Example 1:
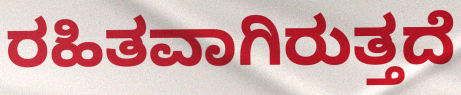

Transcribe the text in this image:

ರಹಿತವಾಗಿರುತ್ತದೆ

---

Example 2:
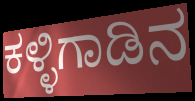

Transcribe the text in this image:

ಕಳ್ಳಿಗಾಡಿನ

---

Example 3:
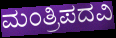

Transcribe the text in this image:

ಮಂತ್ರಿಪದವಿ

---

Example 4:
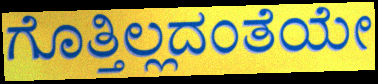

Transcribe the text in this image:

ಗೊತ್ತಿಲ್ಲದಂತೆಯೇ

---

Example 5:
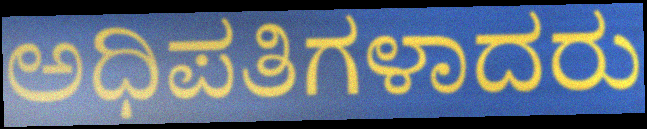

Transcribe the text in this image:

ಅಧಿಪತಿಗಳಾದರು